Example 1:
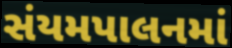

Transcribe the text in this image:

સંયમપાલનમાં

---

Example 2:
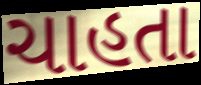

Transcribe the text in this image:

ચાહતા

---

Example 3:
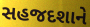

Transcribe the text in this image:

સહજદશાને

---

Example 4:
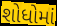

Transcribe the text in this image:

શોધોમાં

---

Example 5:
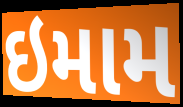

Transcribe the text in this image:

ઇમામ